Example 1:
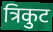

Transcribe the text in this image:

त्रिकुट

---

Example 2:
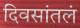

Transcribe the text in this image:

दिवसांतलं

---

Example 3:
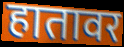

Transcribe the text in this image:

हातावर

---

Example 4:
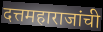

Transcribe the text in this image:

दत्तमहाराजांची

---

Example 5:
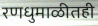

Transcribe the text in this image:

रणधुमाळीतही